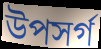
উপসর্গ